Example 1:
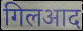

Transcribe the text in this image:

गिलआद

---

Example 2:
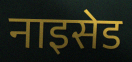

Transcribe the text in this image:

नाइसेड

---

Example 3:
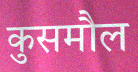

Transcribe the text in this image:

कुसमौल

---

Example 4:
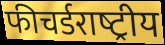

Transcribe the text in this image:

फीचर्डराष्ट्रीय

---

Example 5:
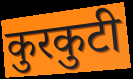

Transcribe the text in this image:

कुरकुटी